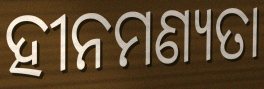
ହୀନମଣ୍ୟତା